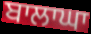
ਬਾਲਾਘਾ